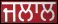
ਜਲਾਲ